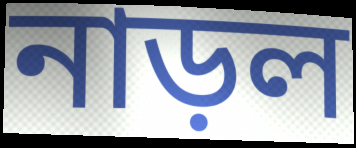
নাড়ল